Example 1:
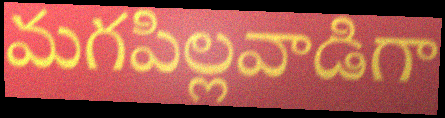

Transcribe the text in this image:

మగపిల్లవాడిగా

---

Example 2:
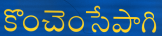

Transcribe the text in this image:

కొంచెంసేపాగి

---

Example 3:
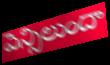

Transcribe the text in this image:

పెన్సిలుందా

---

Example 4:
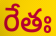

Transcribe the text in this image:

రేతః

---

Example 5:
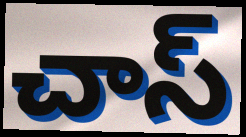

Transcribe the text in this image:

చాస్